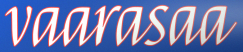
vaarasaa